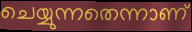
ചെയ്യുന്നതെന്നാണ്